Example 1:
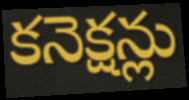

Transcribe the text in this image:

కనెక్షన్లు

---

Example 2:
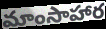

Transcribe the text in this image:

మాంసాహార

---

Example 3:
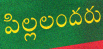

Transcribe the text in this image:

పిల్లలందరు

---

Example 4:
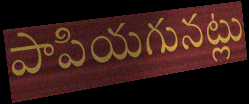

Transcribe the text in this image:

పాపియగునట్లు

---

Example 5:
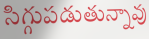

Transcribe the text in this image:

సిగ్గుపడుతున్నావు